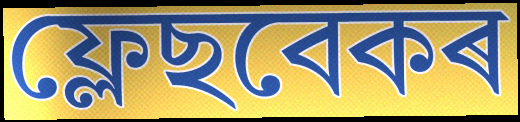
ফ্লেছবেকৰ